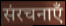
संरचनाएँ